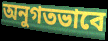
অনুগতভাবে